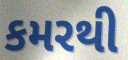
કમરથી